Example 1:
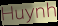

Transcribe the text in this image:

Huynh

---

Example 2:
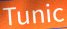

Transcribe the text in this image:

Tunic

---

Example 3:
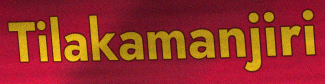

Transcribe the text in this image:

Tilakamanjiri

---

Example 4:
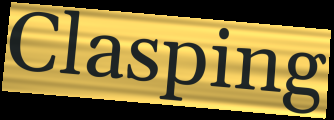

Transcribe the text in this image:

Clasping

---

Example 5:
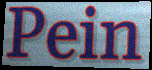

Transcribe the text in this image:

Pein